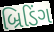
બ્રિડિંગ